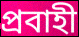
প্রবাহী